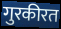
गुरकीरत